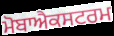
ਮੋਬਾਐਕਸਟਰਮ